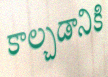
కాల్చడానికి